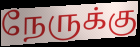
நேருக்கு